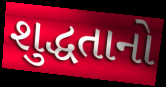
શુદ્ધતાનો